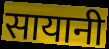
सायानी